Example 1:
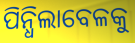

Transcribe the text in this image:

ପିନ୍ଧିଲାବେଳକୁ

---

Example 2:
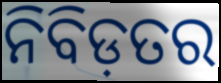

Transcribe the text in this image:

ନିବିଡ଼ତର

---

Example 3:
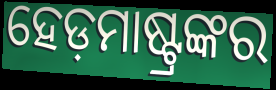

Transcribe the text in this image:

ହେଡ଼ମାଷ୍ଟ୍ରଙ୍କର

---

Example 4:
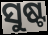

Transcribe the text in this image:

ସୁଷ୍ଟ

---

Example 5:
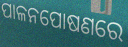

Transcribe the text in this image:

ପାଳନପୋଷଣରେ